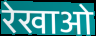
रेखाओ